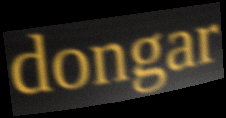
dongar